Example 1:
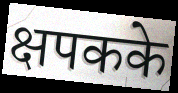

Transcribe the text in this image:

क्षपकके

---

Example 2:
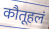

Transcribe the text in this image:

कौतूहलं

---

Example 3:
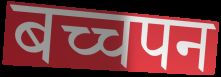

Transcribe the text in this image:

बच्चपन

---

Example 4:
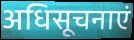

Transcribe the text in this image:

अधिसूचनाएं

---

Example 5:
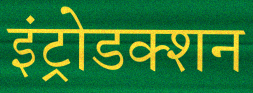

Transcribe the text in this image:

इंट्रोडक्शन